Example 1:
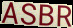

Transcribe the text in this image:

ASBR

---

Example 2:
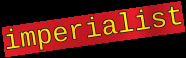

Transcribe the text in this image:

imperialist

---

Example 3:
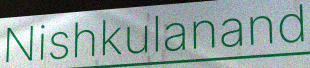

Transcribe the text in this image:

Nishkulanand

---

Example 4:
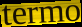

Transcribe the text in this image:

termo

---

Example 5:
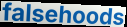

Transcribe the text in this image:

falsehoods